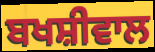
ਬਖਸ਼ੀਵਾਲ